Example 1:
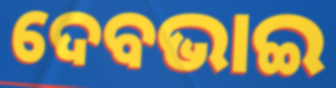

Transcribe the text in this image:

ଦେବଭାଇ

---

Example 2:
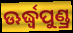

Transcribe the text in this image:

ଊର୍ଦ୍ଧ୍ୱପୁଣ୍ଡ୍ର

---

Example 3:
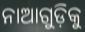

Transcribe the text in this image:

ନାଆଗୁଡ଼ିକୁ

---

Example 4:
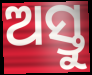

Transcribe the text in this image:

ଅସ୍ତୁ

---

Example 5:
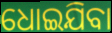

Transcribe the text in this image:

ଧୋଇଯିବା